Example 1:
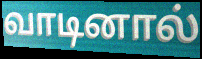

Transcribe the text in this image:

வாடினால்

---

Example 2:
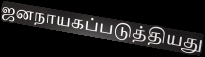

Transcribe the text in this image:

ஜனநாயகப்படுத்தியது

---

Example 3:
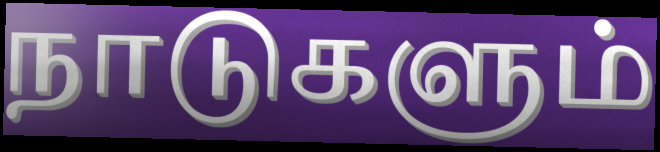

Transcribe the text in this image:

நாடுகளும்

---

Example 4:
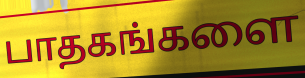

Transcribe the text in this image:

பாதகங்களை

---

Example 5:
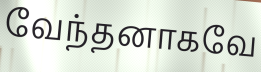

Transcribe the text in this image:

வேந்தனாகவே